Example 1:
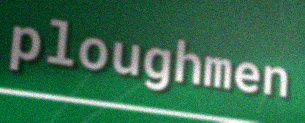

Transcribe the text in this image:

ploughmen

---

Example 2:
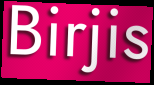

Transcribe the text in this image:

Birjis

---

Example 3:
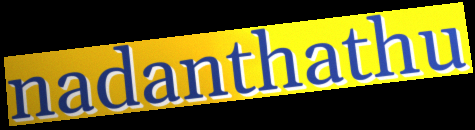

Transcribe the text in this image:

nadanthathu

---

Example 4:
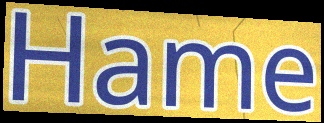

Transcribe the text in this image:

Hame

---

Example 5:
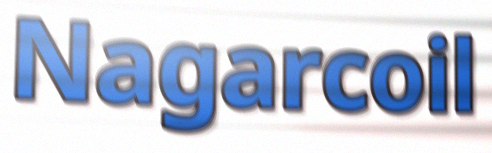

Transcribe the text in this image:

Nagarcoil